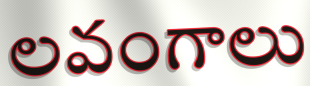
లవంగాలు